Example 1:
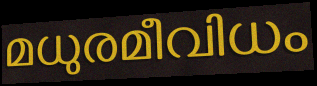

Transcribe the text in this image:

മധുരമീവിധം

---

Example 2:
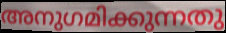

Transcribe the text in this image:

അനുഗമിക്കുന്നതു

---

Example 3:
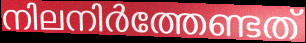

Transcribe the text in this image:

നിലനിർത്തേണ്ടത്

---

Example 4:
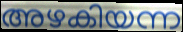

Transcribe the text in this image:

അഴകിയന്ന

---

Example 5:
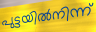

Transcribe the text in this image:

പുട്ടയിൽനിന്ന്